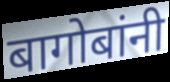
बागोबांनी